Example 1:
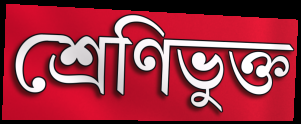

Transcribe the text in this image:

শ্রেণিভুক্ত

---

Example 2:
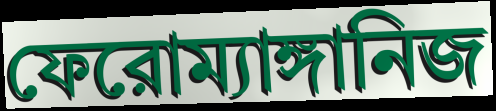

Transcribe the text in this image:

ফেরোম্যাঙ্গানিজ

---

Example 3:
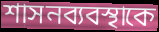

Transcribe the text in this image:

শাসনব্যবস্থাকে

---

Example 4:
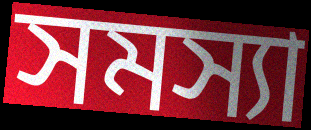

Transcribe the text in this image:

সমস্যা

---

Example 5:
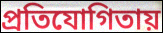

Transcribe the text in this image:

প্রতিযোগিতায়